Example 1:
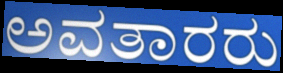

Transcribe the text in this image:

ಅವತಾರರು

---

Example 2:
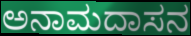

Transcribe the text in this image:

ಅನಾಮದಾಸನ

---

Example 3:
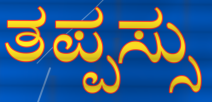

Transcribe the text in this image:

ತಪ್ಪಸ್ಸು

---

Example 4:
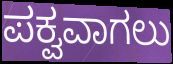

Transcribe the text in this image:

ಪಕ್ವವಾಗಲು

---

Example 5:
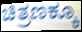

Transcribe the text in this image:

ಚಿತ್ರಣಕ್ಕೂ